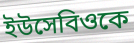
ইউসেবিওকে